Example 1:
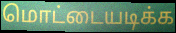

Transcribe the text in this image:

மொட்டையடிக்க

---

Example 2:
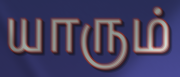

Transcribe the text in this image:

யாரும்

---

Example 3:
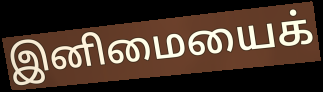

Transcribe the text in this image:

இனிமையைக்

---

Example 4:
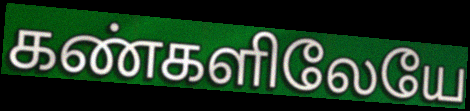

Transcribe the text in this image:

கண்களிலேயே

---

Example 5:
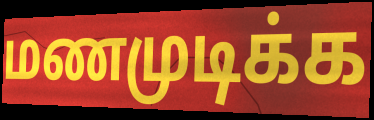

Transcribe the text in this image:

மணமுடிக்க